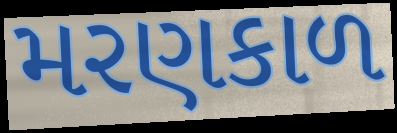
મરણકાળ